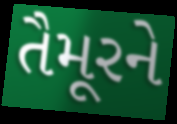
તૈમૂરને